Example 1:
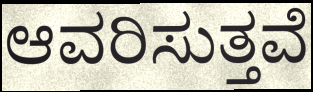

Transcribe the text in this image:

ಆವರಿಸುತ್ತವೆ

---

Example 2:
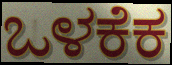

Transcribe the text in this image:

ಒಳಕೆಕ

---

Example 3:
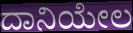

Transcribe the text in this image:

ದಾನಿಯೇಲ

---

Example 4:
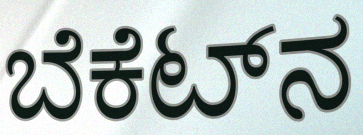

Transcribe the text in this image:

ಬೆಕೆಟ್‌ನ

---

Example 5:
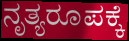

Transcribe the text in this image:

ನೃತ್ಯರೂಪಕ್ಕೆ